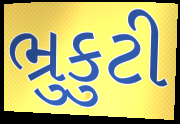
ભ્રુકુટી